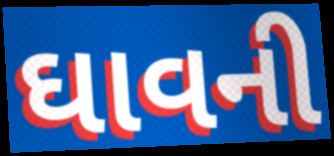
ઘાવની